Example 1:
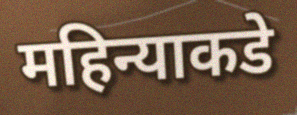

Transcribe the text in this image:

महिन्याकडे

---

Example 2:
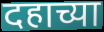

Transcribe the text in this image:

दहाच्या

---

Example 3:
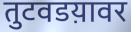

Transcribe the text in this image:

तुटवडय़ावर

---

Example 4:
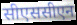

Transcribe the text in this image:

सीएससीएन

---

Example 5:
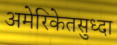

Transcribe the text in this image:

अमेरिकेतसुध्दा